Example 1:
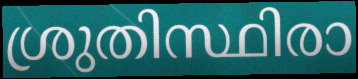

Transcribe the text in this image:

ശ്രുതിസ്ഥിരാ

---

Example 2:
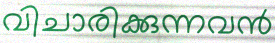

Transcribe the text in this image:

വിചാരിക്കുന്നവൻ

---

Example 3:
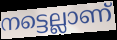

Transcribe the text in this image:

നട്ടെല്ലാണ്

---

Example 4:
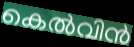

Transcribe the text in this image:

കെൽവിൻ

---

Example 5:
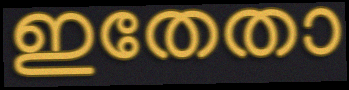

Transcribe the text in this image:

ഇതേതാ